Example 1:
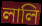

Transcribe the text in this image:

লালি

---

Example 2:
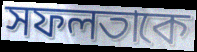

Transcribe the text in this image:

সফলতাকে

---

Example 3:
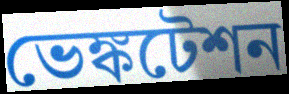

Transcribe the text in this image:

ভেঙ্কটেশন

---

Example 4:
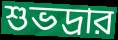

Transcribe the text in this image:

শুভদ্রার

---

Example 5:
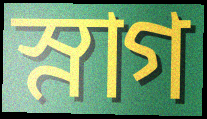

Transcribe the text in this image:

স্নাগ